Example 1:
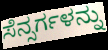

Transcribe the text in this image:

ಸೆನ್ಸರ್ಗಳನ್ನು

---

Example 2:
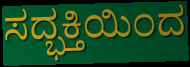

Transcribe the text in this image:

ಸದ್ಭಕ್ತಿಯಿಂದ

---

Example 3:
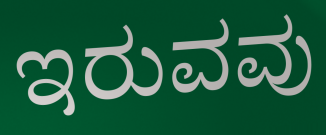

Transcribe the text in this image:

ಇರುವವು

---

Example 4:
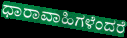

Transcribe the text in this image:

ಧಾರಾವಾಹಿಗಳೆಂದರೆ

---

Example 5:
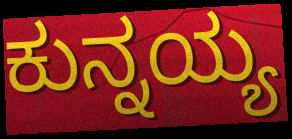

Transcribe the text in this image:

ಕುನ್ನಯ್ಯ